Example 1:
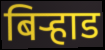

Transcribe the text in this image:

बिऱ्हाड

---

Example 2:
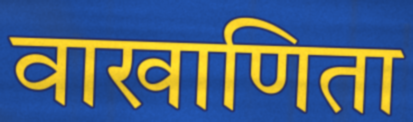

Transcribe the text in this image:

वाखाणिता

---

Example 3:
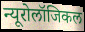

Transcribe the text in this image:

न्यूरोलॉजिकल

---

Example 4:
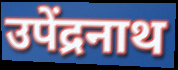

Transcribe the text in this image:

उपेंद्रनाथ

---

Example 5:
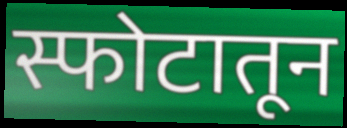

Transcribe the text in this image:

स्फोटातून